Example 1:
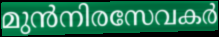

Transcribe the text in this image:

മുൻനിരസേവകർ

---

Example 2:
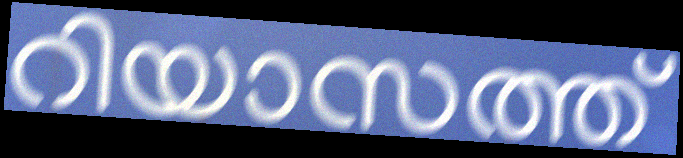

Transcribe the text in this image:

റിയാസത്ത്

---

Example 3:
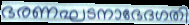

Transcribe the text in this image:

ഭരണഘടനാഭേദഗതി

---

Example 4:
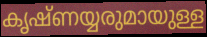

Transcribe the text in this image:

കൃഷ്ണയ്യരുമായുള്ള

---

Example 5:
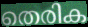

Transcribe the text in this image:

തെരിക